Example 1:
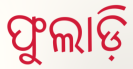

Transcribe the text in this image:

ଫୁଲାଡ଼ି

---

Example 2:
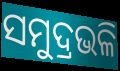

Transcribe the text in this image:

ସମୁଦ୍ରଭଳି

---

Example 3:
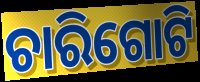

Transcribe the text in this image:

ଚାରିଗୋଟି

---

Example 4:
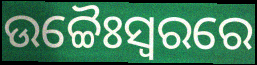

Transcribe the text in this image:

ଉଚ୍ଚୈଃସ୍ୱରରେ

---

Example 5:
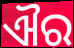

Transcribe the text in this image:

ଐର